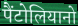
पैंटोलियानो